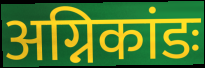
अग्निकांडः